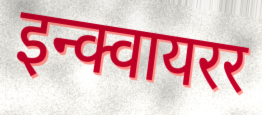
इन्क्वायरर